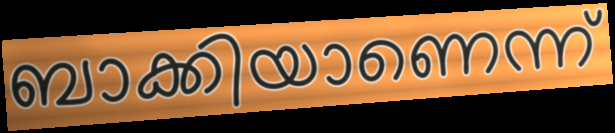
ബാക്കിയാണെന്ന്